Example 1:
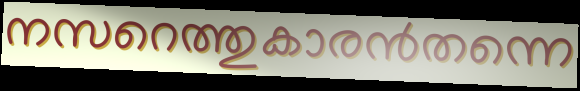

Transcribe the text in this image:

നസറെത്തുകാരൻതന്നെ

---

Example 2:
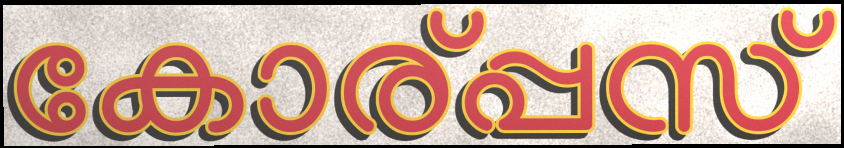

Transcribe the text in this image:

കോര്പ്പസ്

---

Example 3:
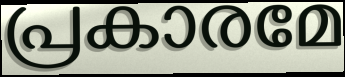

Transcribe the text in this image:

പ്രകാരമേ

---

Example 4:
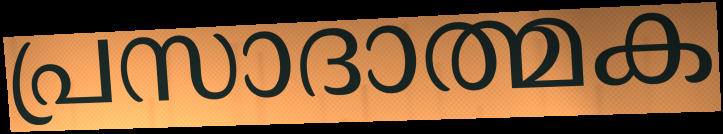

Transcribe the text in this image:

പ്രസാദാത്മക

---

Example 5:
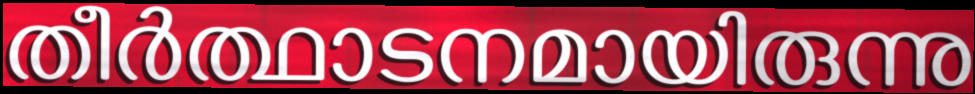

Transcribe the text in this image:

തീർത്ഥാടനമായിരുന്നു